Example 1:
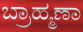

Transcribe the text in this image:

ಬ್ರಾಹ್ಮಣಾ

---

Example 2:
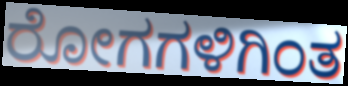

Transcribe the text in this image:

ರೋಗಗಳಿಗಿಂತ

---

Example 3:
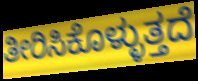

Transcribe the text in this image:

ತೀರಿಸಿಕೊಳ್ಳುತ್ತದೆ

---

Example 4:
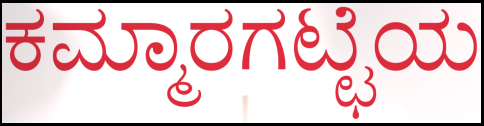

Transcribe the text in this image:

ಕಮ್ಮಾರಗಟ್ಟೆಯ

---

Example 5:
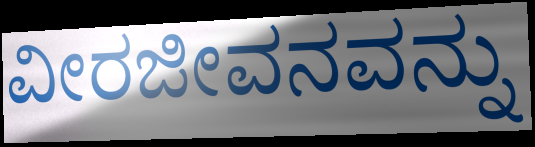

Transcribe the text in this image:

ವೀರಜೀವನವನ್ನು